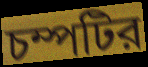
চম্পটির